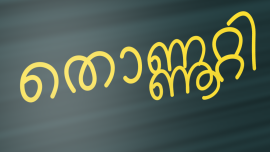
തൊണ്ണൂറ്റി